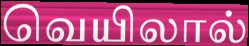
வெயிலால்